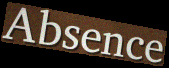
Absence